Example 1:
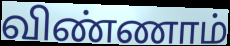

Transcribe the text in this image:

விண்ணாம்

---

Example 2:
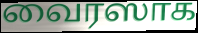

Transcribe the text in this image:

வைரஸாக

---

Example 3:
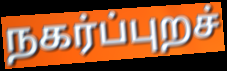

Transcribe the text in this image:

நகர்ப்புறச்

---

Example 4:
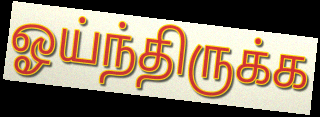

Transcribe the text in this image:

ஓய்ந்திருக்க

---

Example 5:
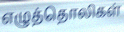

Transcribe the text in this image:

எழுத்தொலிகள்